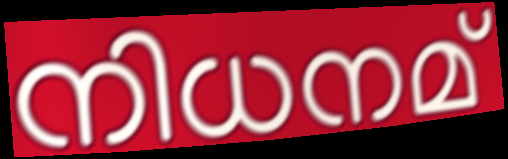
നിധനമ്